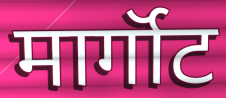
मार्गॉट